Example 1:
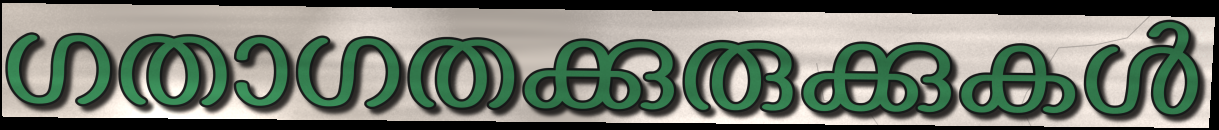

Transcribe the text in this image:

ഗതാഗതക്കുരുക്കുകൾ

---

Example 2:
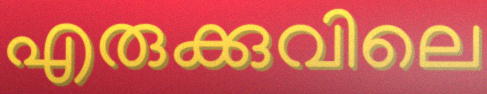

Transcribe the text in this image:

എരുക്കുവിലെ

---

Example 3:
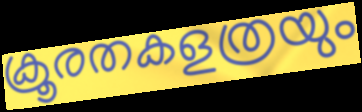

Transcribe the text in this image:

ക്രൂരതകളത്രയും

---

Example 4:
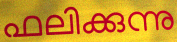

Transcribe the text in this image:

ഫലിക്കുന്നു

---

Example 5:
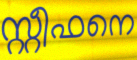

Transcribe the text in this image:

സ്റ്റീഫനെ